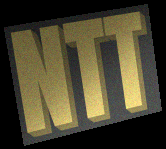
NTT